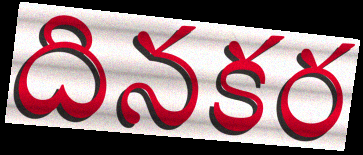
దినకర